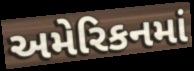
અમેરિકનમાં